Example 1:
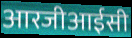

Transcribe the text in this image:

आरजीआईसी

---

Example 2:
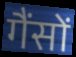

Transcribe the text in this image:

गैंसों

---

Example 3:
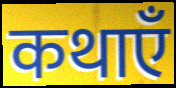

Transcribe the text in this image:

कथाएँ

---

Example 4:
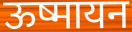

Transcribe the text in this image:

ऊष्मायन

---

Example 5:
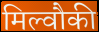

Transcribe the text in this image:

मिल्वौकी